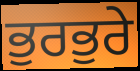
ਭੁਰਭੁਰੇ